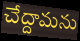
చేద్దామను